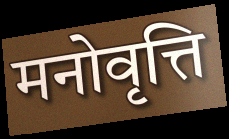
मनोवृत्ति